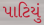
પાટિયું